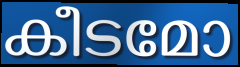
കീടമോ